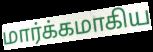
மார்க்கமாகிய